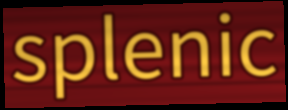
splenic